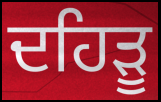
ਦਹਿੜੂ